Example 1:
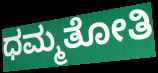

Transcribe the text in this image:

ಧಮ್ಮತೋತಿ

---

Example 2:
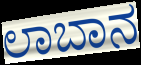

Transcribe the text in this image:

ಲಾಬಾನ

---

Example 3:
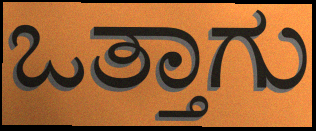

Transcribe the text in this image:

ಒತ್ತಾಗು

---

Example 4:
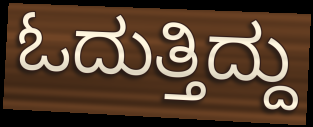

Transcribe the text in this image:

ಓದುತ್ತಿದ್ದು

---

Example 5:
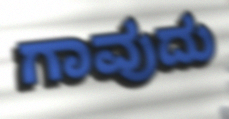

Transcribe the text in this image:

ಗಾವುದು